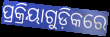
ପ୍ରକ୍ରିୟାଗୁଡ଼ିକରେ